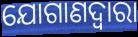
ଯୋଗାଣଦ୍ଵାରା